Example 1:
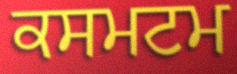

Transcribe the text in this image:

ਕਸਮਟਮ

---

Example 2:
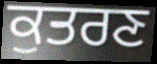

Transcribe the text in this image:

ਕੁਤਰਣ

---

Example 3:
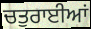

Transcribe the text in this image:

ਚਤੁਰਾਈਆਂ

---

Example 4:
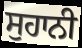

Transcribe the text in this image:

ਸੁਹਾਨੀ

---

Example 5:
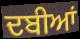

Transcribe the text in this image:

ਦਬੀਆਂ